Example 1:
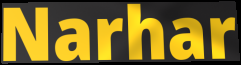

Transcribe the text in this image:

Narhar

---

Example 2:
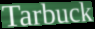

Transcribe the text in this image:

Tarbuck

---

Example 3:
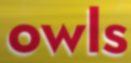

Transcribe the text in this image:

owls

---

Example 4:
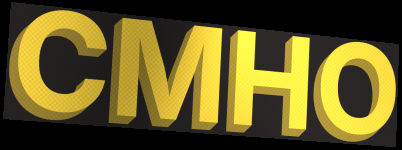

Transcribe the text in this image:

CMHO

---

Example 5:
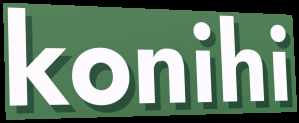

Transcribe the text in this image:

konihi